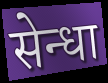
सेन्धा